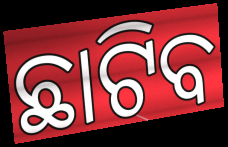
ଛାଟିବ